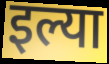
इल्या